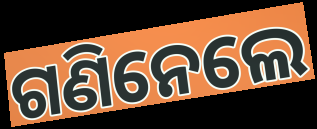
ଗଣିନେଲେ